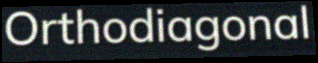
Orthodiagonal